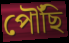
পৌঁছি